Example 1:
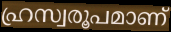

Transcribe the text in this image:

ഹ്രസ്വരൂപമാണ്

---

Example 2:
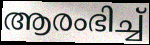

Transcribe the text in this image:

ആരംഭിച്ച്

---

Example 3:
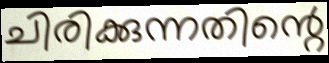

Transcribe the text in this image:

ചിരിക്കുന്നതിന്റെ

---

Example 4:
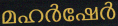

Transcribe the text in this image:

മഹർഷേർ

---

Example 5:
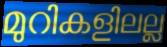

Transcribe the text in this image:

മുറികളിലല്ല